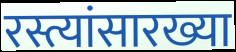
रस्त्यांसारख्या